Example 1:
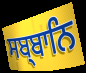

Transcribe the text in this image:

ਸਬ੍ਬਾਨਿ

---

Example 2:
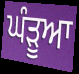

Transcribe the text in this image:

ਘੰੜੂਆ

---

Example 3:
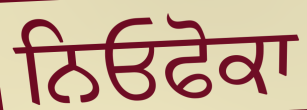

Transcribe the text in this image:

ਨਿਓਫੋਕਾ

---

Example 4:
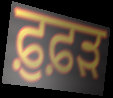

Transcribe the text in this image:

ਫ਼ੁਫ਼ੜ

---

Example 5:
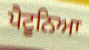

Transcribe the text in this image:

ਪੈਟੂਨਿਆ